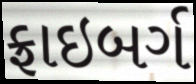
ફ્રાઇબર્ગ